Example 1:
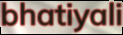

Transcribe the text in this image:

bhatiyali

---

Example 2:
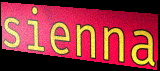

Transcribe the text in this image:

sienna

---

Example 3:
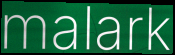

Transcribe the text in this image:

malark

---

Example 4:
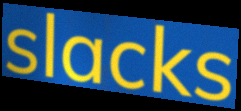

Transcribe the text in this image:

slacks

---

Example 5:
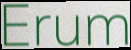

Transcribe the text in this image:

Erum